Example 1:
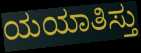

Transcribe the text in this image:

ಯಯಾತಿಸ್ತು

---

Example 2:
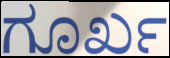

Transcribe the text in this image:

ಗೂರ್ಖ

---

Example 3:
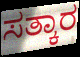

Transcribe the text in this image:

ಸತ್ಕಾರ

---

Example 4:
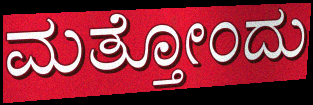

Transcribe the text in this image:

ಮತ್ತೋಂದು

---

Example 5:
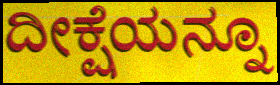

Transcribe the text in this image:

ದೀಕ್ಷೆಯನ್ನೂ